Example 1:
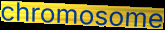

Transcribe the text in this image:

chromosome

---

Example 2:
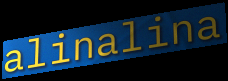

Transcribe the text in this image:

alinalina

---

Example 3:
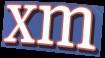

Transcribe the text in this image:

xm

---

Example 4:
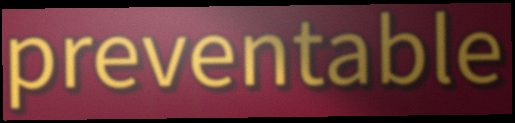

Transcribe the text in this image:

preventable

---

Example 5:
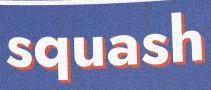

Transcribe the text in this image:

squash